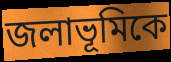
জলাভূমিকে